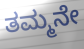
ತಮ್ಮನೇ